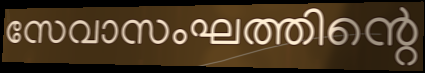
സേവാസംഘത്തിന്റെ